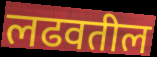
लढवतील